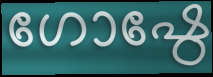
ഗോഷ്ഠേ